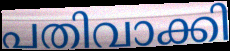
പതിവാക്കി